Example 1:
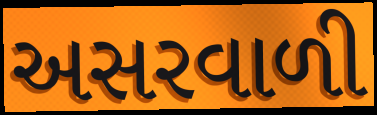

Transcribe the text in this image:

અસરવાળી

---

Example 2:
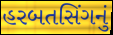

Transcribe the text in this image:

હરબતસિંગનું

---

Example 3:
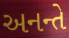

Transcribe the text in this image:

અનન્તે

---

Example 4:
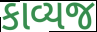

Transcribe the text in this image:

કાવ્યજ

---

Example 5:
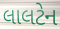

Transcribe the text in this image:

લાલટેન